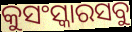
କୁସଂସ୍କାରସବୁ